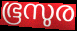
ഭൂസുര